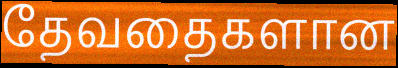
தேவதைகளான